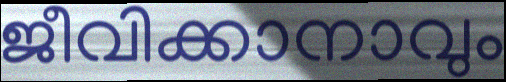
ജീവിക്കാനാവും